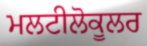
ਮਲਟੀਲੋਕੂਲਰ